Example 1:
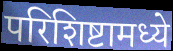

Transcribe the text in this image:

परिशिष्टामध्ये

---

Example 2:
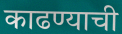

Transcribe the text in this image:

काढण्याची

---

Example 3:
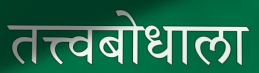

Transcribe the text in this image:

तत्त्वबोधाला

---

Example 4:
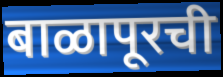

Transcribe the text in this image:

बाळापूरची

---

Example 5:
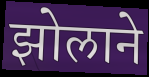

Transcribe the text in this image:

झोलाने